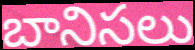
బానిసలు